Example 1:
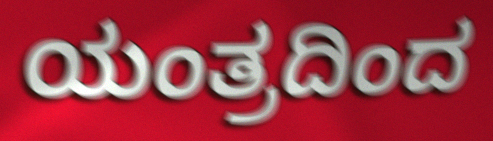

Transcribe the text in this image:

ಯಂತ್ರದಿಂದ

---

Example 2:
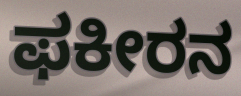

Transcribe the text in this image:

ಫಕೀರನ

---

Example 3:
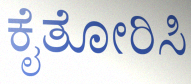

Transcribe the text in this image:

ಕೈತೋರಿಸಿ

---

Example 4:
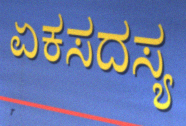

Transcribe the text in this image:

ಏಕಸದಸ್ಯ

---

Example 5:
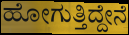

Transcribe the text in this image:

ಹೋಗುತ್ತಿದ್ದೇನೆ